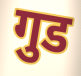
गुड